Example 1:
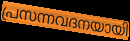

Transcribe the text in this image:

പ്രസന്നവദനയായി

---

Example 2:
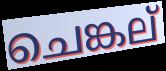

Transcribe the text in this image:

ചെങ്കല്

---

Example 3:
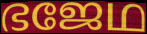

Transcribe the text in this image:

ഭജേഥ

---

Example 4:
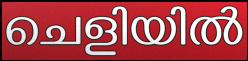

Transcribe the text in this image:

ചെളിയിൽ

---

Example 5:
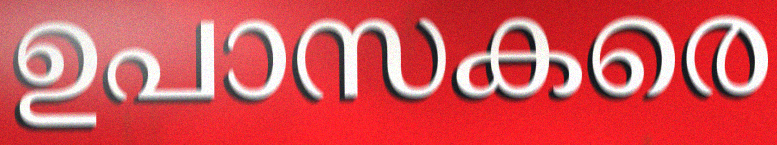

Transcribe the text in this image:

ഉപാസകരെ